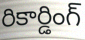
రికార్డింగ్